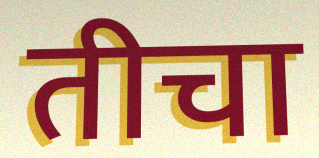
तीचा